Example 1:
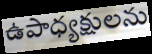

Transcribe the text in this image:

ఉపాధ్యక్షులను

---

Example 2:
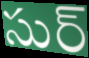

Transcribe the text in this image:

సుర్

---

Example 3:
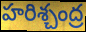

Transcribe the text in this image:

హరిశ్చంద్ర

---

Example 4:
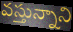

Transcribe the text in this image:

వస్తున్నాని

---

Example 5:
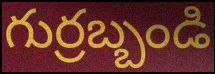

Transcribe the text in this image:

గుర్రబ్బండి